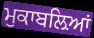
ਮੁਕਾਬਲ਼ਿਆਂ